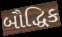
બૌદ્ધિક